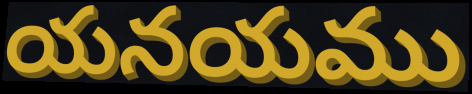
యనయము